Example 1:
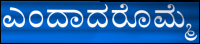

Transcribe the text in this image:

ಎಂದಾದರೊಮ್ಮೆ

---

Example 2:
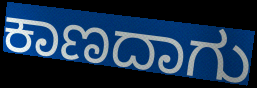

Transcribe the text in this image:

ಕಾಣದಾಗು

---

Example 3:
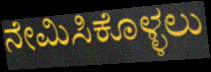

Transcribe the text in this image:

ನೇಮಿಸಿಕೊಳ್ಳಲು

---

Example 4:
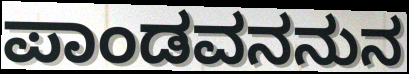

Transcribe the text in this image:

ಪಾಂಡವನನುನ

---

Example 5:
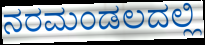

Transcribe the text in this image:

ನರಮಂಡಲದಲ್ಲಿ